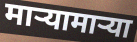
माऱ्यामाऱ्या